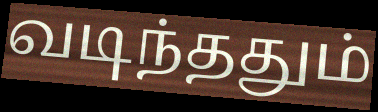
வடிந்ததும்